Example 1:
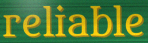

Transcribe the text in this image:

reliable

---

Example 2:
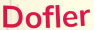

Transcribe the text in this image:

Dofler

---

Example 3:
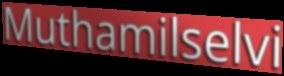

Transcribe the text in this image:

Muthamilselvi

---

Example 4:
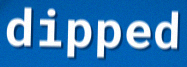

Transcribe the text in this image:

dipped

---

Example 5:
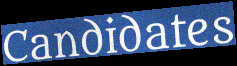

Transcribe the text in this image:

Candidates